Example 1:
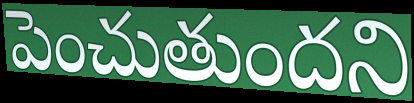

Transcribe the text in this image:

పెంచుతుందని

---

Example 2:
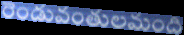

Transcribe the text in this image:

రెండువంతులమంది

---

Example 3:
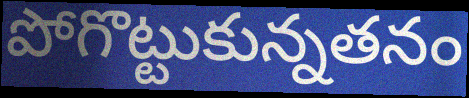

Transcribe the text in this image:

పోగొట్టుకున్నతనం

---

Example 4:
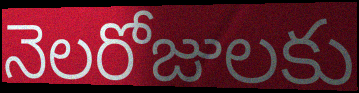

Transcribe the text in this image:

నెలరోజులకు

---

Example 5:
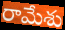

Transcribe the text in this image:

రామేశు